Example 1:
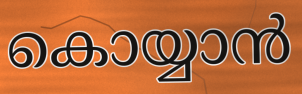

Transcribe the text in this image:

കൊയ്യാൻ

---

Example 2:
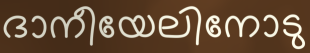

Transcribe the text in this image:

ദാനീയേലിനോടു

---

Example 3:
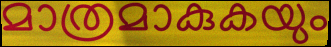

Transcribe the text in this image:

മാത്രമാകുകയും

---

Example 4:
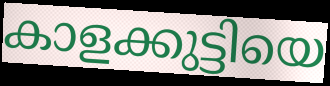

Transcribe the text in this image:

കാളക്കുട്ടിയെ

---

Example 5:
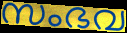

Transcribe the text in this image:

സംഭവ